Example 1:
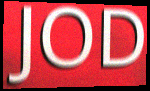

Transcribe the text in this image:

JOD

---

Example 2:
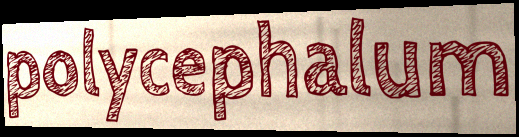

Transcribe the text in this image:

polycephalum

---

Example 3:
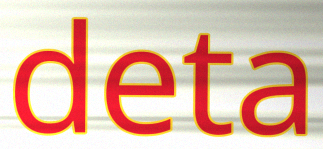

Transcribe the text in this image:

deta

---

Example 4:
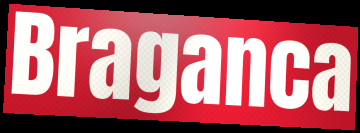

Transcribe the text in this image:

Braganca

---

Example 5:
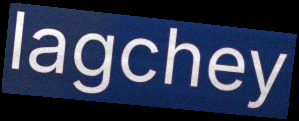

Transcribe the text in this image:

lagchey